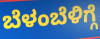
ಬೆಳಂಬೆಳಿಗ್ಗೆ